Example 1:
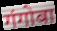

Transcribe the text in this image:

गंगोबा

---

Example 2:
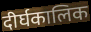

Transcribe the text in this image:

दीर्घकालिक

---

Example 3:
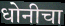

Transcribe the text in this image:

धोनीचा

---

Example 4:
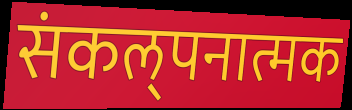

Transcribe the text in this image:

संकल्पनात्मक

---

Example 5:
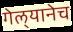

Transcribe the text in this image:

गेल्यानेच